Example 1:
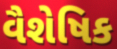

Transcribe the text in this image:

વૈશેષિક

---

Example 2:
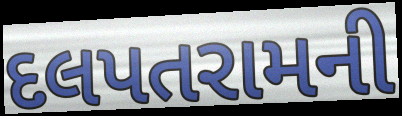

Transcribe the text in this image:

દલપતરામની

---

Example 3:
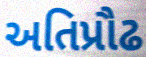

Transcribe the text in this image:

અતિપ્રૌઢ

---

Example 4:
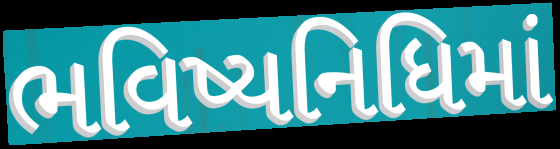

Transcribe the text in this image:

ભવિષ્યનિધિમાં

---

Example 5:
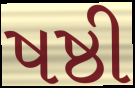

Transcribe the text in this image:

ષષ્ઠી